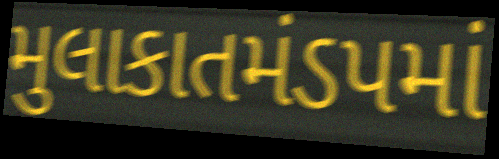
મુલાકાતમંડપમાં